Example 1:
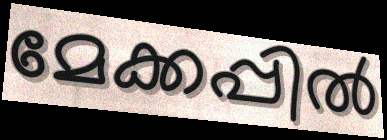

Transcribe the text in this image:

മേക്കപ്പിൽ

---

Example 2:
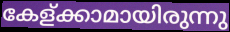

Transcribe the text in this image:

കേള്ക്കാമായിരുന്നു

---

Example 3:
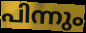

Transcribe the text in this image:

പിന്നും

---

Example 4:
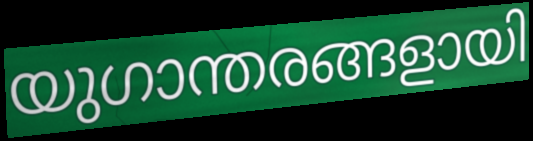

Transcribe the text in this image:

യുഗാന്തരങ്ങളായി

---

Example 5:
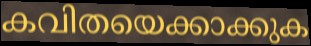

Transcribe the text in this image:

കവിതയെക്കാക്കുക